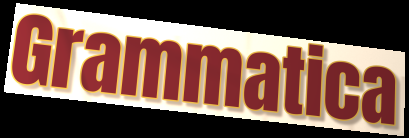
Grammatica